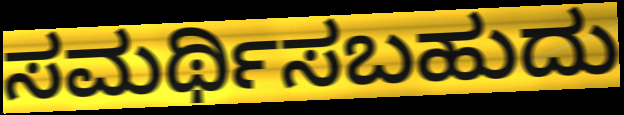
ಸಮರ್ಥಿಸಬಹುದು